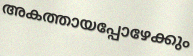
അകത്തായപ്പോഴേക്കും